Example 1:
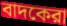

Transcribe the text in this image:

বাদকেরা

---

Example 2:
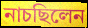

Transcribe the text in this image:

নাচছিলেন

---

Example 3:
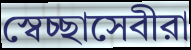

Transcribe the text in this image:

স্বেচ্ছাসেবীরা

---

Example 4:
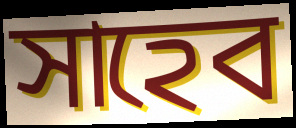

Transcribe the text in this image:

সাহেব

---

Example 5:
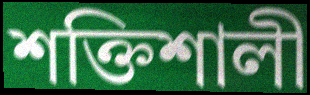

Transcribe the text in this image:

শক্তিশালী